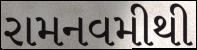
રામનવમીથી